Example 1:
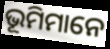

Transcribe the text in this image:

ଭୂମିମାନେ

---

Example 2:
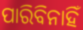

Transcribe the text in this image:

ପାରିବିନାହିଁ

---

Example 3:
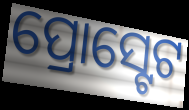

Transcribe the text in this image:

ପ୍ରୋସ୍ଟେଟ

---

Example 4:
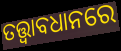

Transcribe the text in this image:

ତତ୍ତ୍ଵାବଧାନରେ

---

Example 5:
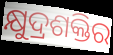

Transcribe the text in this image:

କ୍ଷୁଦ୍ରଶକ୍ତିର